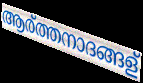
ആര്ത്തനാദങ്ങള്